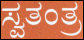
ಸ್ವತಂತ್ರ